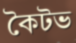
কৈটভ